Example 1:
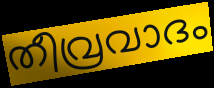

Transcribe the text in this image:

തീവ്രവാദം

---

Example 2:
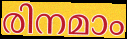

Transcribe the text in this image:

രിനമാം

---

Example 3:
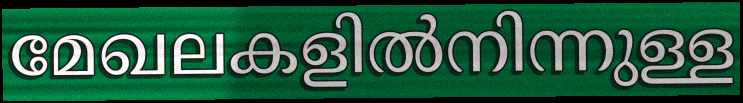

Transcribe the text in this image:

മേഖലകളിൽനിന്നുള്ള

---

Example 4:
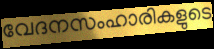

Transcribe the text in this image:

വേദനസംഹാരികളുടെ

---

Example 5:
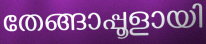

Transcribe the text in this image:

തേങ്ങാപ്പൂളായി